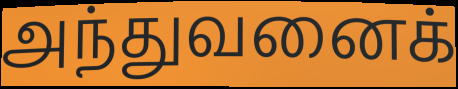
அந்துவனைக்